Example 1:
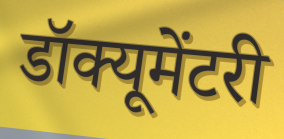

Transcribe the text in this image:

डॉक्यूमेंटरी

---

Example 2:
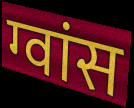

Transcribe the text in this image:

ग्वांस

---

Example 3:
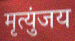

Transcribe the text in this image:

मृत्युंजय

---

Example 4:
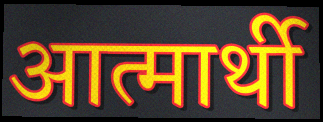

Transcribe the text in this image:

आत्मार्थी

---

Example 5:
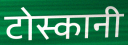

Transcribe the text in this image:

टोस्कानी